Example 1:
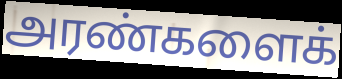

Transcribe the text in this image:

அரண்களைக்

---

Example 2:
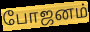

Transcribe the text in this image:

போஜனம்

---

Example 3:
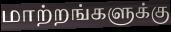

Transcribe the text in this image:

மாற்றங்களுக்கு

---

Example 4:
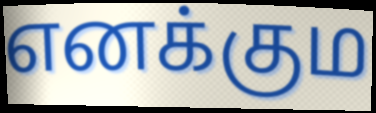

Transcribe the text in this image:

எனக்கும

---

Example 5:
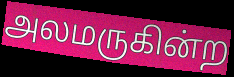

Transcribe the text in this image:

அலமருகின்ற